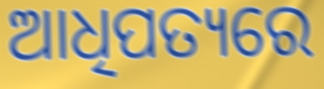
ଆଧିପତ୍ୟରେ